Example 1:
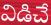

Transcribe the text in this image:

విడిచే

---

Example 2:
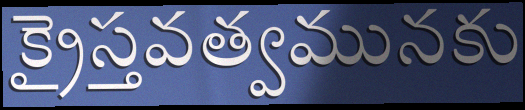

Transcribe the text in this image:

క్రైస్తవత్వమునకు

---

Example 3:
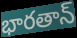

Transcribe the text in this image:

భారతాన్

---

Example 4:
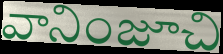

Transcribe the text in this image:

వానింజూచి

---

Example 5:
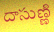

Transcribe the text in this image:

దాసుణ్ణి